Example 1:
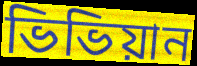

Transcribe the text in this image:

ভিভিয়ান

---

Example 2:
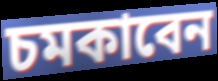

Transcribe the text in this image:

চমকাবেন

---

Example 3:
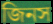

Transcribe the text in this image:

জিনস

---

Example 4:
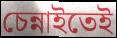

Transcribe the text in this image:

চেন্নাইতেই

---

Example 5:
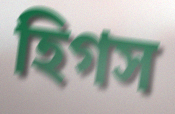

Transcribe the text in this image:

হিগস